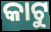
କାଟୁ